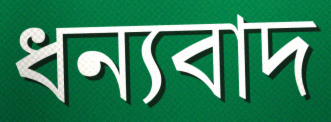
ধন্যবাদ